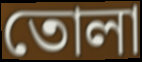
তোলা